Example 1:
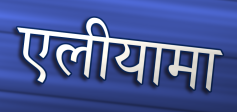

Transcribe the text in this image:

एलीयामा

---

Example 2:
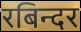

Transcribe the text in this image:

रबिन्दर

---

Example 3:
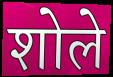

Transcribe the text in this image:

शोले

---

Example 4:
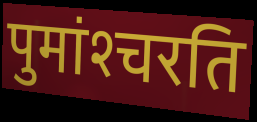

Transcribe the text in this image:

पुमांश्चरति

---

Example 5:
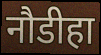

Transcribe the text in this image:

नौडीहा